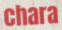
chara